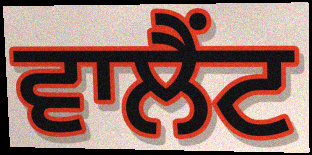
ਵਾਲੈਂਟ